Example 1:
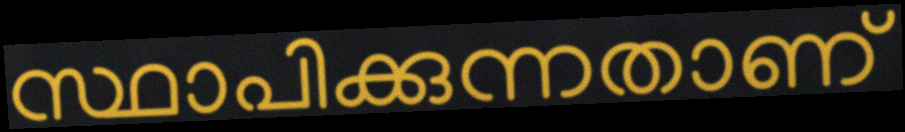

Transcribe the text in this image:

സ്ഥാപിക്കുന്നതാണ്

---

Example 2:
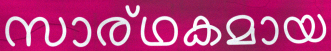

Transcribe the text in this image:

സാര്ഥകമായ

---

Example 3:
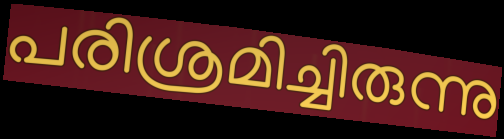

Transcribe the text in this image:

പരിശ്രമിച്ചിരുന്നു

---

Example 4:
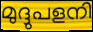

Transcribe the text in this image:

മുദ്ദുപളനി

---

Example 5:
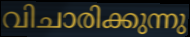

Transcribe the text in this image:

വിചാരിക്കുന്നു